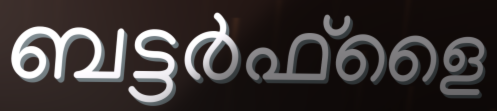
ബട്ടർഫ്ളൈ